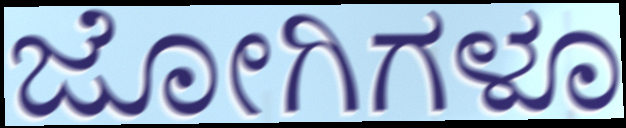
ಜೋಗಿಗಳೂ